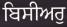
ਬਿਸੀਅਰੁ